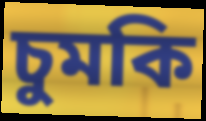
চুমকি